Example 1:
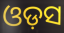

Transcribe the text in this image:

ଓଡ଼ସ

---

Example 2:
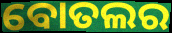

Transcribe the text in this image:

ବୋତଲର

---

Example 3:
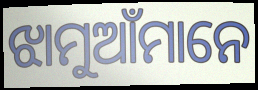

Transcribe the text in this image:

ଝାମୁଆଁମାନେ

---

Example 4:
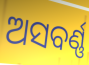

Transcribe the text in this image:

ଅସବର୍ଣ୍ଣ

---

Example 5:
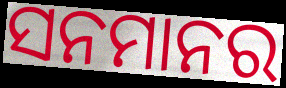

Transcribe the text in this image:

ସନମାନର